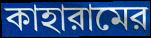
কাহারামের